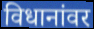
विधानांवर